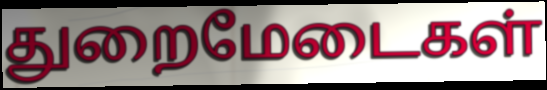
துறைமேடைகள்